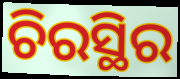
ଚିରସ୍ଥିର